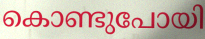
കൊണ്ടുപോയി